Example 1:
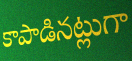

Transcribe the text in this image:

కాపాడినట్లుగా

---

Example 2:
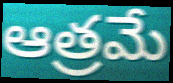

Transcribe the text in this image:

ఆత్రమే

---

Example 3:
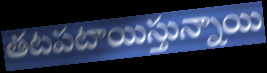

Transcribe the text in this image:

తటపటాయిస్తున్నాయి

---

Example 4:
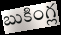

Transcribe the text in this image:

బుకింగ్ల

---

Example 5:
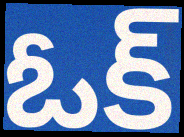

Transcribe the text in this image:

ఓక్